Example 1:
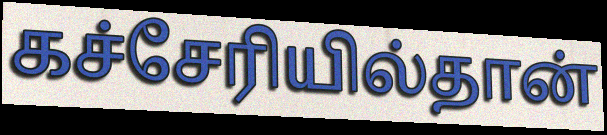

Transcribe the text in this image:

கச்சேரியில்தான்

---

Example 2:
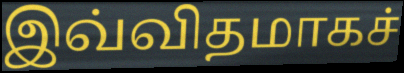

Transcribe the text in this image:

இவ்விதமாகச்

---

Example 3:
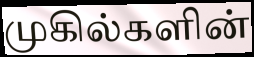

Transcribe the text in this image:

முகில்களின்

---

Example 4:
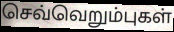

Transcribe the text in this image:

செவ்வெறும்புகள்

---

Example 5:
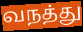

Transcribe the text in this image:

வநத்து